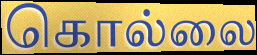
கொல்லை